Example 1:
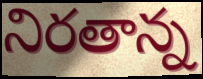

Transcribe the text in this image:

నిరతాన్న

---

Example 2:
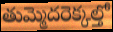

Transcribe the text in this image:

తుమ్మెదరెక్కల్తో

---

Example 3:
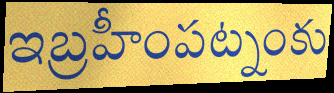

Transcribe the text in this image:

ఇబ్రహీంపట్నంకు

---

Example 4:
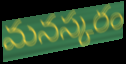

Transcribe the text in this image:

మనస్కరం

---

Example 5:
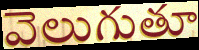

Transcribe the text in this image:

వెలుగుతూ